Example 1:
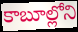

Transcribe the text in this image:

కాబూల్లోని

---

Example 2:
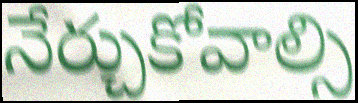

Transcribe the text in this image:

నేర్చుకోవాల్సి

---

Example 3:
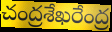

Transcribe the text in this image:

చంద్రశేఖరేంద్ర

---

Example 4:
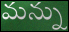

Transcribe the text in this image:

మన్ను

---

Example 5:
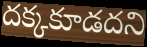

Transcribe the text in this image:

దక్కకూడదని